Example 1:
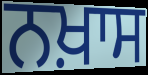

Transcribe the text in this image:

ਨਖ਼ਾਸ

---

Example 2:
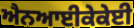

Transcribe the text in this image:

ਐਨਆਈਕੇਕੇਈ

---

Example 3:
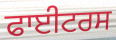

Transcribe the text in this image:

ਫਾਈਟਰਸ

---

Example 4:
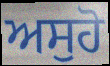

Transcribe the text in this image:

ਅਸੁਹੋ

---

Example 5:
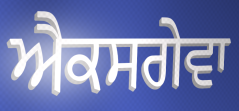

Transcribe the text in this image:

ਐਕਸਗੇਵਾ